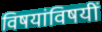
विषयांविषयीं